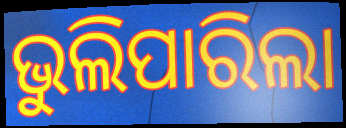
ଭୁଲିପାରିଲା